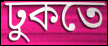
ঢুকতে